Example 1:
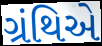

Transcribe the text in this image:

ગ્રંથિએ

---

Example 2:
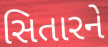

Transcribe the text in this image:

સિતારને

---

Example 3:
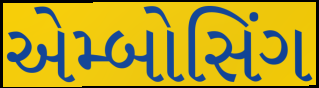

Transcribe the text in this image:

એમ્બોસિંગ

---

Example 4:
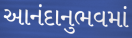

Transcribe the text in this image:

આનંદાનુભવમાં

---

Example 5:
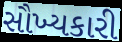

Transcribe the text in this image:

સૌખ્યકારી